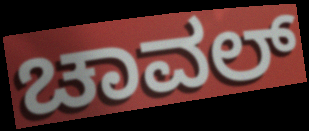
ಚಾವಲ್